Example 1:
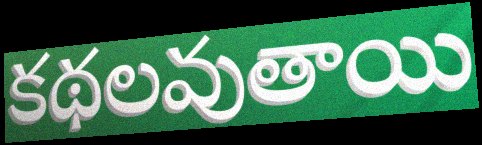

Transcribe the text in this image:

కథలవుతాయి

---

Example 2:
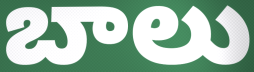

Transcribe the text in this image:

బాలు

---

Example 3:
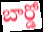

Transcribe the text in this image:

బార్డో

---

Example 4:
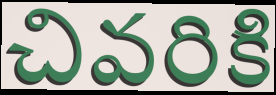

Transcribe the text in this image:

చివరికి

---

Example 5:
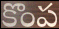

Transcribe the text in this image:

కొంప